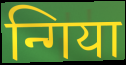
न्गिया